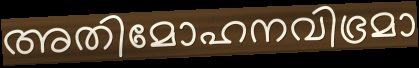
അതിമോഹനവിഭ്രമാ